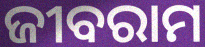
ଜୀବରାମ